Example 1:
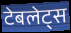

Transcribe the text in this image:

टेबलेट्स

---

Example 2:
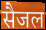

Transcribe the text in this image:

सैजल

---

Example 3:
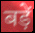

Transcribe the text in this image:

बड़ें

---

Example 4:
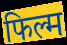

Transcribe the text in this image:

फिल्म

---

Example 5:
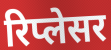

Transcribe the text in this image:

रिप्लेसर